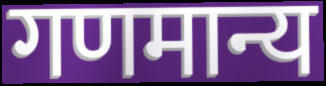
गणमान्य